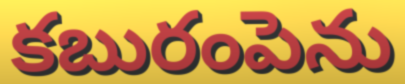
కబురంపెను